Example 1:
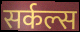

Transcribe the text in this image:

सर्कल्स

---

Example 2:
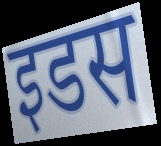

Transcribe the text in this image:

इडस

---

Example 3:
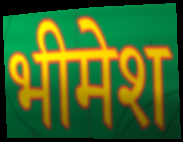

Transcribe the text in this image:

भीमेश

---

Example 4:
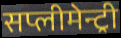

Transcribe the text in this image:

सप्लीमेन्ट्री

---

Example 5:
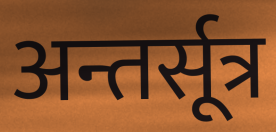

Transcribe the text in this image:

अन्तर्सूत्र